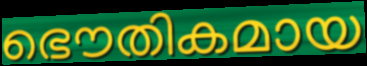
ഭൌതികമായ